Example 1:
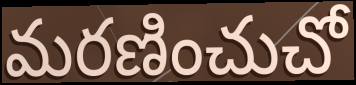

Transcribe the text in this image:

మరణించుచో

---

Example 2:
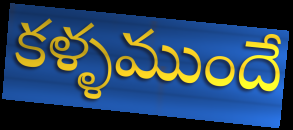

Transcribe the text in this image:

కళ్ళముందే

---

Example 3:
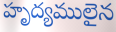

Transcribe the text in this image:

హృద్యములైన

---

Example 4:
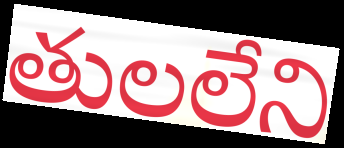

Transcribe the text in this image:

తులలేని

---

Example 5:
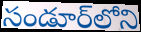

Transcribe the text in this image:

సండూర్‌లోని